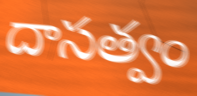
దాసత్వం